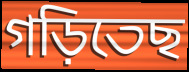
গড়িতেছ